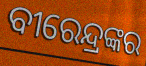
ବୀରେନ୍ଦ୍ରଙ୍କର